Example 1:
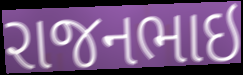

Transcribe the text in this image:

રાજનભાઇ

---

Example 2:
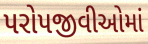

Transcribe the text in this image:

પરોપજીવીઓમાં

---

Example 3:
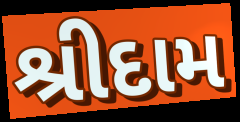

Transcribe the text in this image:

શ્રીદામ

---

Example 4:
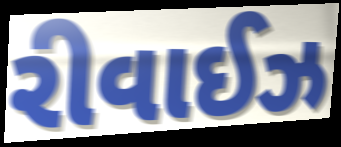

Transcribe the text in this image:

રીવાઈઝ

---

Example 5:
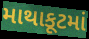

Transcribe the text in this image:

માથાકૂટમાં